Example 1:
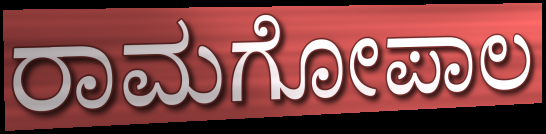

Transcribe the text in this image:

ರಾಮಗೋಪಾಲ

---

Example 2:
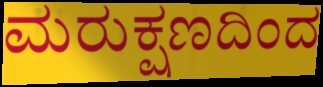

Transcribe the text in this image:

ಮರುಕ್ಷಣದಿಂದ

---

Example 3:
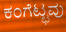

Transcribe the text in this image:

ಕಂಗೆಟ್ಟವು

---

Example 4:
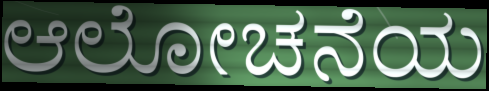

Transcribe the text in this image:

ಆಲೋಚನೆಯ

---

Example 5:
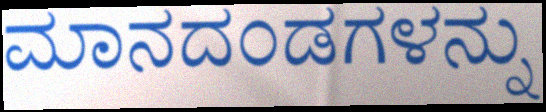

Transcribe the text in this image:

ಮಾನದಂಡಗಳನ್ನು